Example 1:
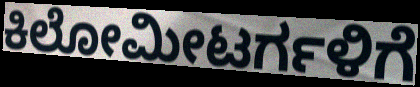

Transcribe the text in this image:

ಕಿಲೋಮೀಟರ್ಗಳಿಗೆ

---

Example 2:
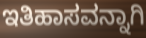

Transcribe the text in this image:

ಇತಿಹಾಸವನ್ನಾಗಿ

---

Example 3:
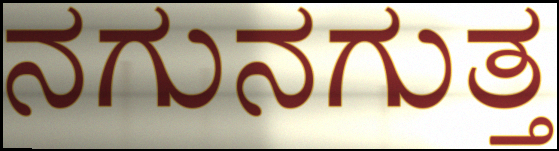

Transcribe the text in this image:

ನಗುನಗುತ್ತ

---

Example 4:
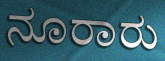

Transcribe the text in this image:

ನೂರಾರು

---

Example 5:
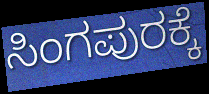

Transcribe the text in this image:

ಸಿಂಗಪುರಕ್ಕೆ